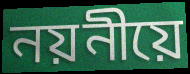
নয়নীয়ে